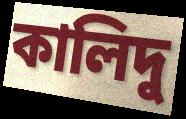
কালিদু